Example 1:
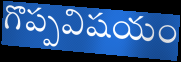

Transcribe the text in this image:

గొప్పవిషయం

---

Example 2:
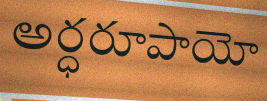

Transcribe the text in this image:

అర్ధరూపాయో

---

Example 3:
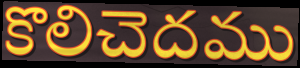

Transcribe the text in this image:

కొలిచెదము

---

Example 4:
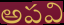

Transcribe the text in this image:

అపవి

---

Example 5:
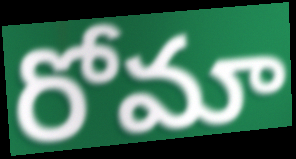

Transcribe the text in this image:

రోమా